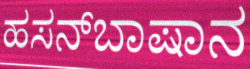
ಹಸನ್‌ಬಾಷಾನ